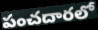
పంచదారలో